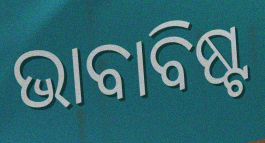
ଭାବାବିଷ୍ଟ